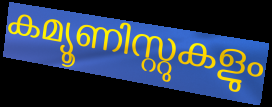
കമ്യൂണിസ്റ്റുകളും